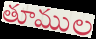
తూముల